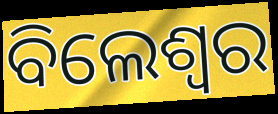
ବିଲେଶ୍ଵର